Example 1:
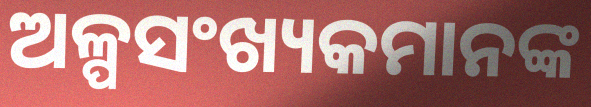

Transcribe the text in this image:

ଅଳ୍ପସଂଖ୍ୟକମାନଙ୍କ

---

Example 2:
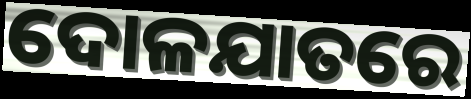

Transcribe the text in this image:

ଦୋଳଯାତରେ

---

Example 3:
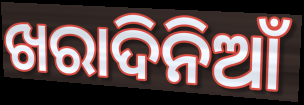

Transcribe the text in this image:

ଖରାଦିନିଆଁ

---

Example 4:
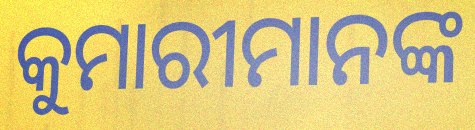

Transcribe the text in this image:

କୁମାରୀମାନଙ୍କ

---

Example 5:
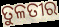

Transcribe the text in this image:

ତୁଳତୀର